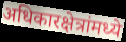
अधिकारक्षेत्रांमध्ये